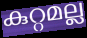
കുറ്റമല്ല